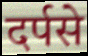
दर्पसे